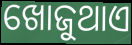
ଖୋଜୁଥାଏ